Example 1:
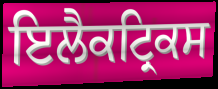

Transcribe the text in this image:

ਇਲੈਕਟ੍ਰਿਕਸ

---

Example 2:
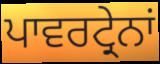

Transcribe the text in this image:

ਪਾਵਰਟ੍ਰੇਨਾਂ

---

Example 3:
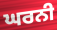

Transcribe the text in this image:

ਘਰਨੀ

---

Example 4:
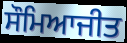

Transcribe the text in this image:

ਸੌਮਿਆਜੀਤ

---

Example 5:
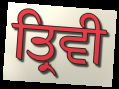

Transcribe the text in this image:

ਤ੍ਰਿਵੀ